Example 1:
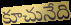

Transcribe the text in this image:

కూచునేది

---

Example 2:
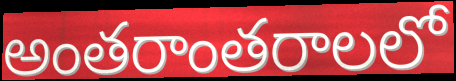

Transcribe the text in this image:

అంతరాంతరాలలో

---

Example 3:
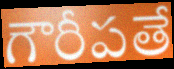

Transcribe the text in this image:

గౌరీపతే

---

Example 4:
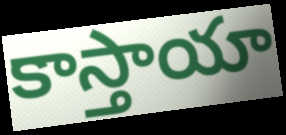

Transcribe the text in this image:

కాస్తాయా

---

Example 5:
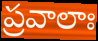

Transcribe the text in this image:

ప్రవాలాః